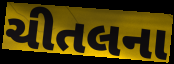
ચીતલના